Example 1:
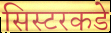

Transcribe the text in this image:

सिस्टरकडे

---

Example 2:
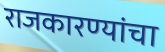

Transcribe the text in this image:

राजकारण्यांचा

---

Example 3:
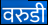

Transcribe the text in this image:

वरुडी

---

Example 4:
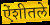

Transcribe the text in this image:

ऐंशीतले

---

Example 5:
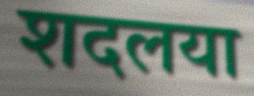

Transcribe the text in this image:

शदलया